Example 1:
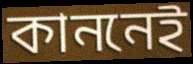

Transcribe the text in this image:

কাননেই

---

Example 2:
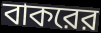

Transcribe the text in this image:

বাকরের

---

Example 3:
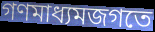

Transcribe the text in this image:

গণমাধ্যমজগতে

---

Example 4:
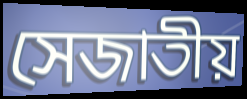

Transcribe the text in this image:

সেজাতীয়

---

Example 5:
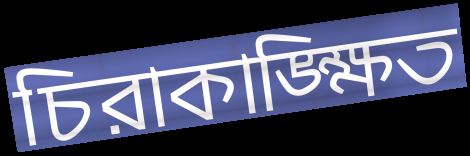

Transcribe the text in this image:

চিরাকাঙ্ক্ষিত